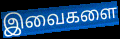
இவைகளை